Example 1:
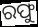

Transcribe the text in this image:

ରଫୁ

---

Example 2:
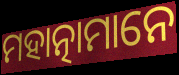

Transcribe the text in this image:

ମହାତ୍ନାମାନେ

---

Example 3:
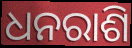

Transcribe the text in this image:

ଧନରାଶି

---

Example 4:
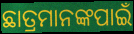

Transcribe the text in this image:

ଛାତ୍ରମାନଙ୍କପାଇଁ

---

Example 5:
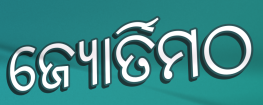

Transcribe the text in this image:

ଜ୍ୟୋର୍ତିମଠ